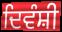
ਦਿਵੰਸ਼ੀ